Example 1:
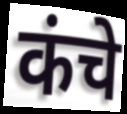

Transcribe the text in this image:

कंचे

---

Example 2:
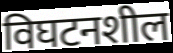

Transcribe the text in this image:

विघटनशील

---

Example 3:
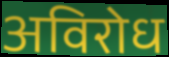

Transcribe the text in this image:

अविरोध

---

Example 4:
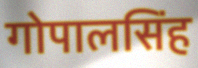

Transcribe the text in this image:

गोपालसिंह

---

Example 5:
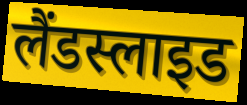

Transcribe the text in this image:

लैंडस्लाइड